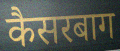
कैसरबाग